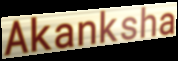
Akanksha